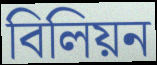
বিলিয়ন